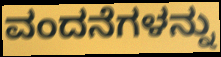
ವಂದನೆಗಳನ್ನು